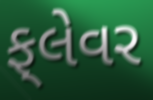
ફ્‌લેવર